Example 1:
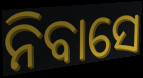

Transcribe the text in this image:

ନିବାସେ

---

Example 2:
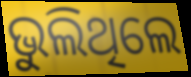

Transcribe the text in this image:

ଭୁଲିଥିଲେ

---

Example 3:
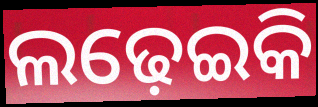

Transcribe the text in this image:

ଲଢ଼େଇକି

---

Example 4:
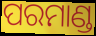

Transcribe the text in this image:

ପରମାଣ୍ଡ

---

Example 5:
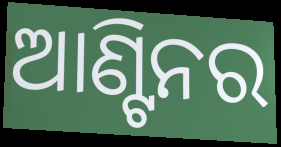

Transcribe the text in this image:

ଆଣ୍ଟିନର